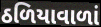
ઠળિયાવાળાં